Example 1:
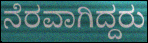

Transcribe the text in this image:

ನೆರವಾಗಿದ್ದರು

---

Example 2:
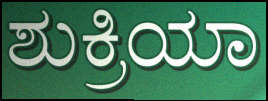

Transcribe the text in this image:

ಶುಕ್ರಿಯಾ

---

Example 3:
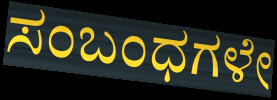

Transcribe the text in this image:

ಸಂಬಂಧಗಳೇ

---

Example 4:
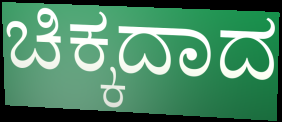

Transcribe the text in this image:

ಚಿಕ್ಕದಾದ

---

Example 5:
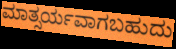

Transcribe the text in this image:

ಮಾತ್ಸರ್ಯವಾಗಬಹುದು